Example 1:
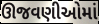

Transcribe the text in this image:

ઊજવણીઓમાં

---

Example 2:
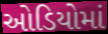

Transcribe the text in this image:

ઓડિયોમાં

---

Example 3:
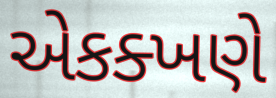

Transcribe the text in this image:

એકક્ખણે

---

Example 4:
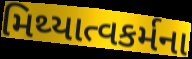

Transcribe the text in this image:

મિથ્યાત્વકર્મના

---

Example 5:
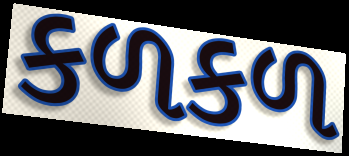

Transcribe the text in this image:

કળકળ